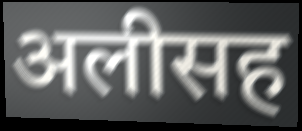
अलीसह